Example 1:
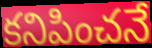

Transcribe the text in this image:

కనిపించనే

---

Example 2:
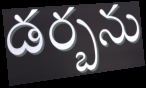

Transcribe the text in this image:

డర్బను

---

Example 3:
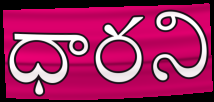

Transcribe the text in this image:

ధారని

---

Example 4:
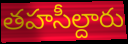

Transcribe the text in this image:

తహసీల్దారు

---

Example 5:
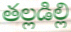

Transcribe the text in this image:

తల్లడిల్లి